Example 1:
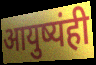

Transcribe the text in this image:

आयुष्यंही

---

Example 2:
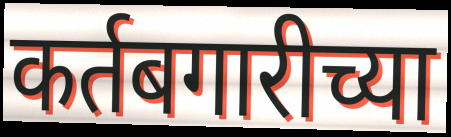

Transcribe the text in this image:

कर्तबगारीच्या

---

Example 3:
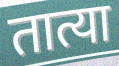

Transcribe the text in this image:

तात्या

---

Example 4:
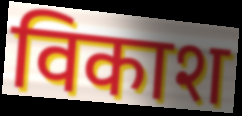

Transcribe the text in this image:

विकाश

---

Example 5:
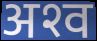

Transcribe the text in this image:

अश्व